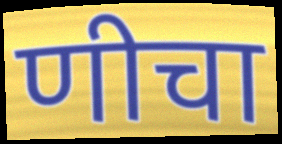
णीचा